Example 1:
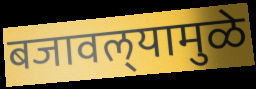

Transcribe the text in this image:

बजावल्यामुळे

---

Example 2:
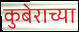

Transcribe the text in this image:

कुबेराच्या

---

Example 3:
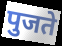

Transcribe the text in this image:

पुजते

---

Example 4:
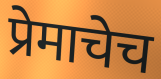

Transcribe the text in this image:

प्रेमाचेच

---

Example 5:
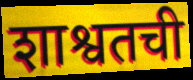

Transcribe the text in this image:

शाश्वतची